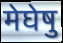
मेघेषु